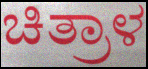
ಚಿತ್ರಾಳ